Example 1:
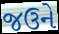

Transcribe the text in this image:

જઉને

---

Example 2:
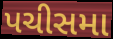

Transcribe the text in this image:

પચીસમા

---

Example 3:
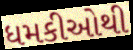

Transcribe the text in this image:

ધમકીઓથી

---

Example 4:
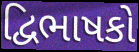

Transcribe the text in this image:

દ્વિભાષકો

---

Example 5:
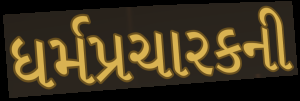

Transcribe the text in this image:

ધર્મપ્રચારકની